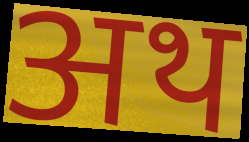
अथ